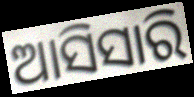
ଆସିସାରି